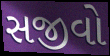
સજીવો